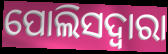
ପୋଲିସଦ୍ୱାରା